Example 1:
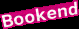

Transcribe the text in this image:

Bookend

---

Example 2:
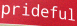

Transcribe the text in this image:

prideful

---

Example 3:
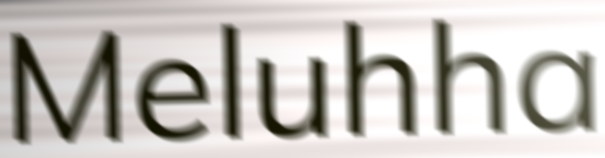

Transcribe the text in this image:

Meluhha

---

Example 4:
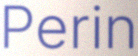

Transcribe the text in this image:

Perin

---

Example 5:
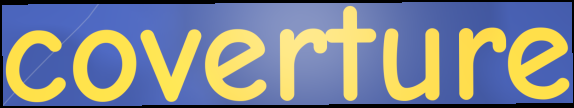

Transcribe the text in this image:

coverture